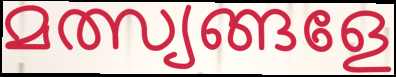
മത്സ്യങ്ങളേ